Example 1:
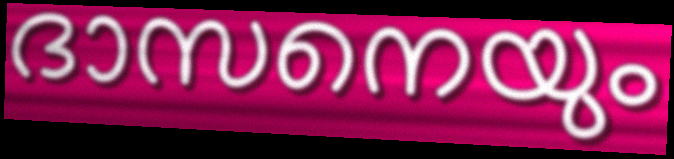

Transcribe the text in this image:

ദാസനെയും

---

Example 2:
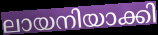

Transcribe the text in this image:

ലായനിയാക്കി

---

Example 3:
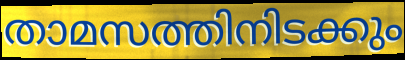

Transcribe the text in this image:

താമസത്തിനിടക്കും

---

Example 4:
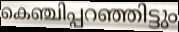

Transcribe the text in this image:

കെഞ്ചിപ്പറഞ്ഞിട്ടും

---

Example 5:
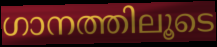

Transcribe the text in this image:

ഗാനത്തിലൂടെ